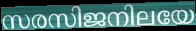
സരസിജനിലയേ